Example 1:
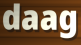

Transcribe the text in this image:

daag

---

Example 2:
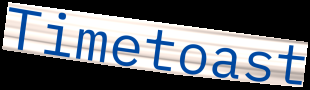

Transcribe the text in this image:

Timetoast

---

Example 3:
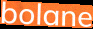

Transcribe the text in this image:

bolane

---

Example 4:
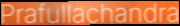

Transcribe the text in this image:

Prafullachandra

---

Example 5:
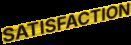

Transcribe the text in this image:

SATISFACTION